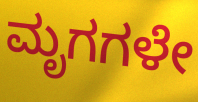
ಮೃಗಗಳೇ